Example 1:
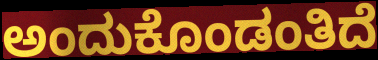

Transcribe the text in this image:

ಅಂದುಕೊಂಡಂತಿದೆ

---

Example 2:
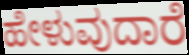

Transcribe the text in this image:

ಹೇಳುವುದಾರೆ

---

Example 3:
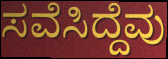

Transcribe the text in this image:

ಸವೆಸಿದ್ದೆವು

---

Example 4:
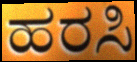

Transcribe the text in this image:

ಹರಸಿ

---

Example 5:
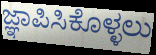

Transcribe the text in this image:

ಜ್ಞಾಪಿಸಿಕೊಳ್ಳಲು